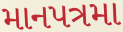
માનપત્રમા